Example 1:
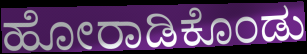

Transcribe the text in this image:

ಹೋರಾಡಿಕೊಂಡು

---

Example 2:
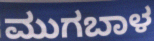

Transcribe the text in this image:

ಮುಗಬಾಳ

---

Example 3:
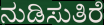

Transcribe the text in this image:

ನುಡಿಸುತಿರೆ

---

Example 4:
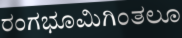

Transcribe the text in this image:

ರಂಗಭೂಮಿಗಿಂತಲೂ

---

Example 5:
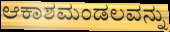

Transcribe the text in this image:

ಆಕಾಶಮಂಡಲವನ್ನು